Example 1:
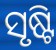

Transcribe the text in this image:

ସୃଷ୍ଟି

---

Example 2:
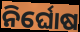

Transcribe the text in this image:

ନିର୍ଘୋଷ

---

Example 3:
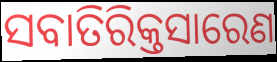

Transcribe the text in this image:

ସବାତିରିକ୍ତସାରେଣ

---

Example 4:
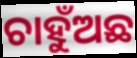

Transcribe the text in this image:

ଚାହୁଁଅଛ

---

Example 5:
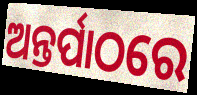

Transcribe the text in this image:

ଅନ୍ତର୍ପାଠରେ